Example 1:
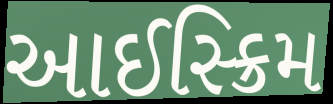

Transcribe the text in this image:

આઈસ્ક્રિમ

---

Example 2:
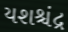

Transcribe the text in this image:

યશશ્ચંદ્ર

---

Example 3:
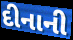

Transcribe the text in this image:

દીનાની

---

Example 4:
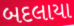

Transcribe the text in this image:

બદલાયા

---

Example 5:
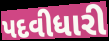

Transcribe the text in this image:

પદવીધારી